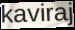
kaviraj